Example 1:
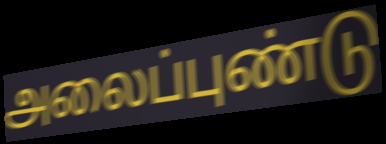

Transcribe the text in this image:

அலைப்புண்டு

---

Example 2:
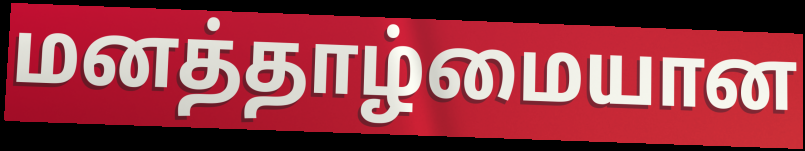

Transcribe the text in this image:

மனத்தாழ்மையான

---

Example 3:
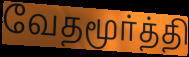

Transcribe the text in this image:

வேதமூர்த்தி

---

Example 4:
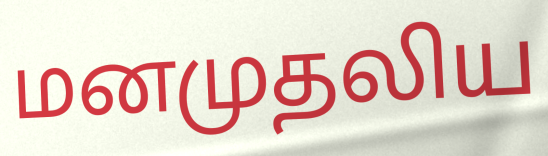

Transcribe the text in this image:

மனமுதலிய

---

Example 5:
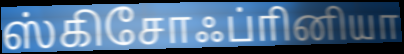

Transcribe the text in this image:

ஸ்கிசோஃப்ரினியா